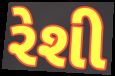
રેશી